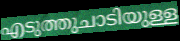
എടുത്തുചാടിയുള്ള